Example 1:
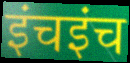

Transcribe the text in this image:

इंचइंच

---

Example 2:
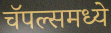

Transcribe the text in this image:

चॅपल्समध्ये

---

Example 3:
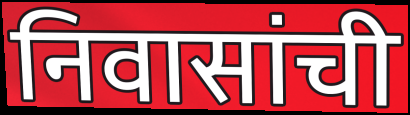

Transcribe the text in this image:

निवासांची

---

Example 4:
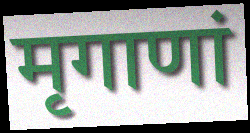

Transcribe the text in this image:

मृगाणां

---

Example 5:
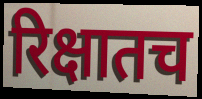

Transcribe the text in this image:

रिक्षातच